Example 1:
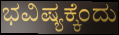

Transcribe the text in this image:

ಭವಿಷ್ಯಕ್ಕೆಂದು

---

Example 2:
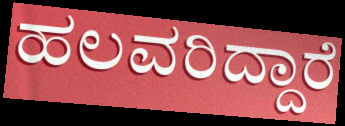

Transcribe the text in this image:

ಹಲವರಿದ್ದಾರೆ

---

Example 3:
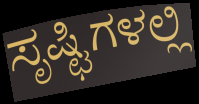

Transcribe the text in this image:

ಸೃಷ್ಟಿಗಳಲ್ಲಿ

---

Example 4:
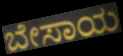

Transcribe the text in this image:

ಬೇಸಾಯ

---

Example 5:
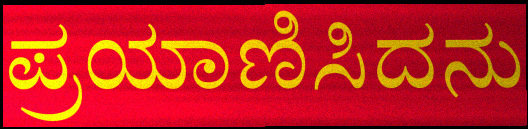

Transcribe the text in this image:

ಪ್ರಯಾಣಿಸಿದನು